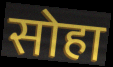
सोहा